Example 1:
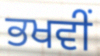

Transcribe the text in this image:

ਭਖਵੀਂ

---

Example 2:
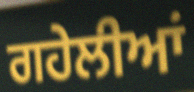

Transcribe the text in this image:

ਗਹੇਲੀਆਂ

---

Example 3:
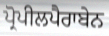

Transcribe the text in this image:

ਪ੍ਰੋਪੀਲਪੈਰਾਬੇਨ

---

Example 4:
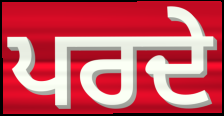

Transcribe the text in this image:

ਪਰਦੇ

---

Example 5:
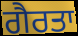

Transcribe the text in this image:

ਗੈਰਤਾ